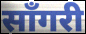
साँगरी